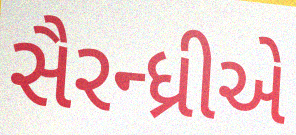
સૈરન્ધ્રીએ